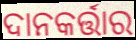
ଦାନକର୍ତ୍ତାର